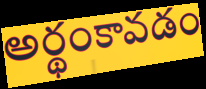
అర్థంకావడం